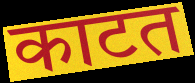
काटत